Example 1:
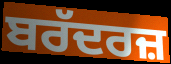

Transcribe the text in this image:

ਬਰੱਦਰਜ਼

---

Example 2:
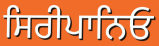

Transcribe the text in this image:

ਸਿਰੀਪਾਨਿਓ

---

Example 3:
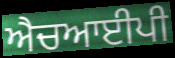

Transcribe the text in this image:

ਐਚਆਈਪੀ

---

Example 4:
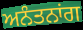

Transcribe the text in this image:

ਅਨੰਤਨਾਂਗ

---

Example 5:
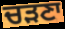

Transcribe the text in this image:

ਚੜਣਾ